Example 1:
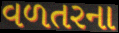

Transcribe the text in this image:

વળતરના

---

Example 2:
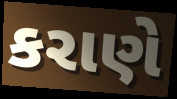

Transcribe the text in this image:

કરાણે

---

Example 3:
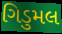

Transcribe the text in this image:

ગિડુમલ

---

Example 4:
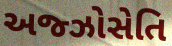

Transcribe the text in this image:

અજ્ઝોસેતિ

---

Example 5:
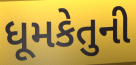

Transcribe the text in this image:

ધૂમકેતુની